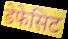
डेफेसिट